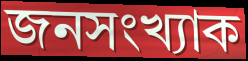
জনসংখ্যাক